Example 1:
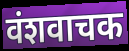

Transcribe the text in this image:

वंशवाचक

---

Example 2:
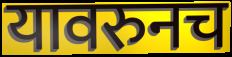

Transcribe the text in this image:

यावरुनच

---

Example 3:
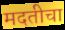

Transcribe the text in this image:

मदतीचा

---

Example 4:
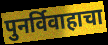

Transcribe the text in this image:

पुनर्विवाहाचा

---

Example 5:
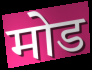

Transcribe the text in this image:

मोड